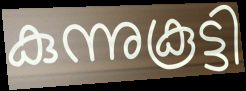
കുന്നുകൂട്ടി